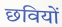
छवियों